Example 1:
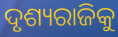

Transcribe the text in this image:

ଦୃଶ୍ୟରାଜିକୁ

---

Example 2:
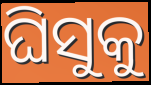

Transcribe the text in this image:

ଘିସୁକୁ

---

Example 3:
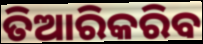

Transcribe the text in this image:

ତିଆରିକରିବ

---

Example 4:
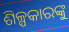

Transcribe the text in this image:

ଶିଳ୍ପକାରଙ୍କୁ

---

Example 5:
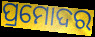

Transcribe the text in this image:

ପ୍ରମୋଦର